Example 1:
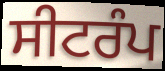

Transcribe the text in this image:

ਸੀਟਰੰਪ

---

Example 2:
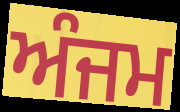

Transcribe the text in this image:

ਅੰਜਮ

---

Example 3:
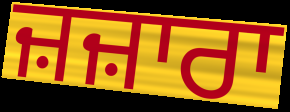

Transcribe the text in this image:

ਜ਼ਜ਼ਾਰਾ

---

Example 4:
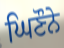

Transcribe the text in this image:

ਘਿਣੌਨੇ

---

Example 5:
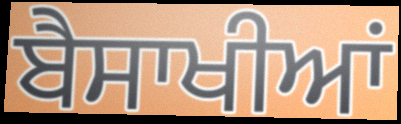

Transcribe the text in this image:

ਬੈਸਾਖੀਆਂ